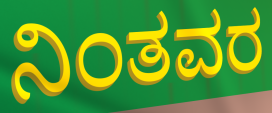
ನಿಂತವರ